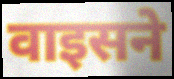
वाइसने